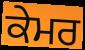
ਕੇਮਰ